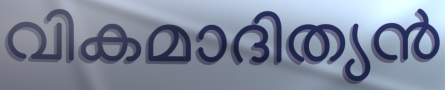
വികമാദിത്യൻ